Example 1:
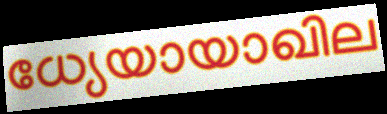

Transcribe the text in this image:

ധ്യേയായാഖില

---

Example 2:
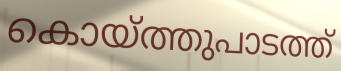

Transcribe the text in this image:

കൊയ്ത്തുപാടത്ത്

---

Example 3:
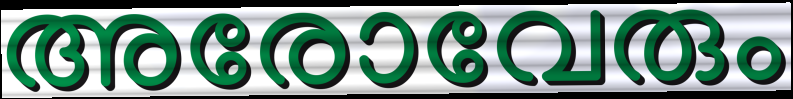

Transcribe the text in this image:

അരോവേരും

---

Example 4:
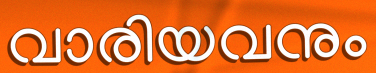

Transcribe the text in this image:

വാരിയവനും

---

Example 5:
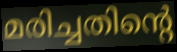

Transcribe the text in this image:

മരിച്ചതിന്റെ